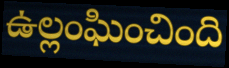
ఉల్లంఘించింది